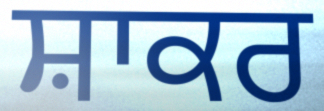
ਸ਼ਾਕਰ